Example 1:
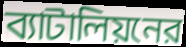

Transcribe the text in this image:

ব্যাটালিয়নের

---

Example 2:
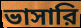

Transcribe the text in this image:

ভাসারি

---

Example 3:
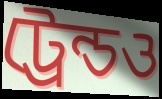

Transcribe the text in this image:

ট্রেন্ডও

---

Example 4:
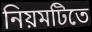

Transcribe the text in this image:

নিয়মটিতে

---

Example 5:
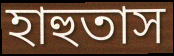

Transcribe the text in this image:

হাহুতাস